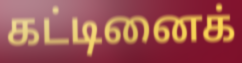
கட்டினைக்